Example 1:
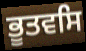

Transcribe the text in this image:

ਭੂਤਵਸਿ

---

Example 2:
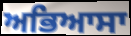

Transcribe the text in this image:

ਅਭਿਆਸਾ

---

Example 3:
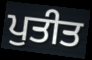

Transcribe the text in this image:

ਪੁਤੀਤ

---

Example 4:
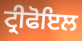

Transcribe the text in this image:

ਟ੍ਰੀਫੋਇਲ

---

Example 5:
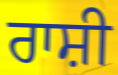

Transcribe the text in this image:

ਰਾਸ਼ੀ